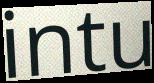
intu